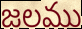
జలము